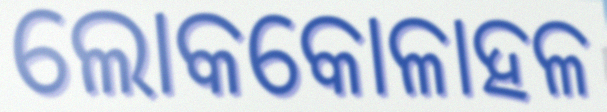
ଲୋକକୋଳାହଳ